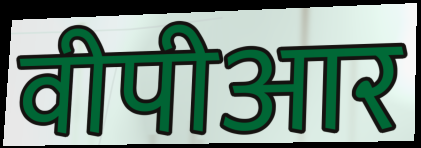
वीपीआर